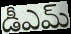
డీఎమ్